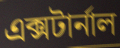
এক্সটার্নাল